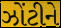
ઝોંટીને